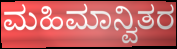
ಮಹಿಮಾನ್ವಿತರ